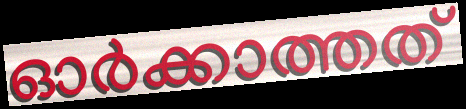
ഓർക്കാത്തത്